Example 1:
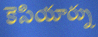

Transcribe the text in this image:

కెసియార్ను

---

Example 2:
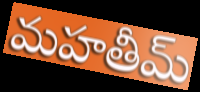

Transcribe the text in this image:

మహతీమ్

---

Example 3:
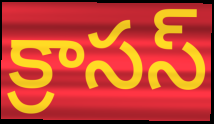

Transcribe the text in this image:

క్రాసస్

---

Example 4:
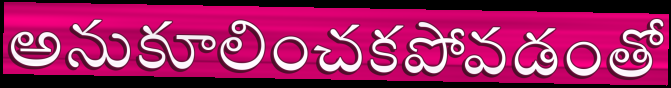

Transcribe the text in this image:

అనుకూలించకపోవడంతో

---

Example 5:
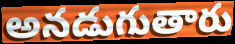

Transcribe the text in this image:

అనడుగుతారు